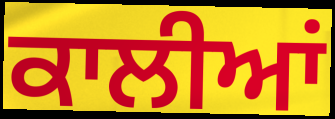
ਕਾਲੀਆਂ